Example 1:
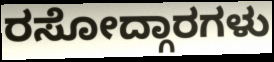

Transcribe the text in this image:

ರಸೋದ್ಗಾರಗಳು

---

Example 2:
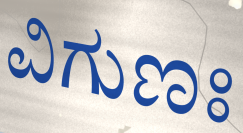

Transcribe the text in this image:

ವಿಗುಣಃ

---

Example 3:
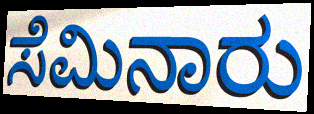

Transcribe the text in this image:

ಸೆಮಿನಾರು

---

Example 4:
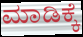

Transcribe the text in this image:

ಮಾಡಿಕ್ಕೆ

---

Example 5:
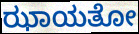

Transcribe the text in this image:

ಝಾಯತೋ